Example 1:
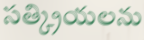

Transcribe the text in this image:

సత్క్రియలను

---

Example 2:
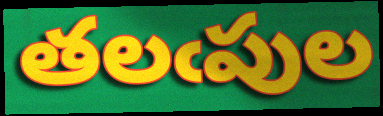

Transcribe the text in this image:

తలఁపుల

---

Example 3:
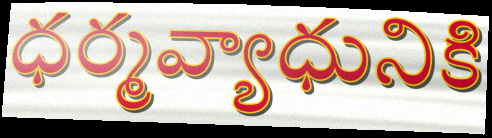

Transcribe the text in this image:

ధర్మవ్యాధునికి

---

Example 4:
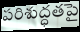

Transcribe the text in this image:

పరిశుద్ధతపై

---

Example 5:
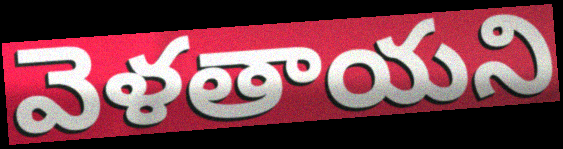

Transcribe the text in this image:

వెళతాయని